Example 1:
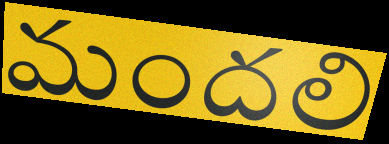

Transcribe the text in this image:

మందలి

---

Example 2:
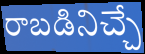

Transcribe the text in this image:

రాబడినిచ్చే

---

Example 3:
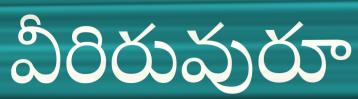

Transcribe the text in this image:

వీరిరువురూ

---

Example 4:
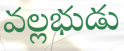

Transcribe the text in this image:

వల్లభుడు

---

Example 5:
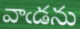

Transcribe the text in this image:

వాఁడను